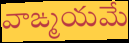
వాఙ్మయమే